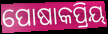
ପୋଷାକପ୍ରିୟ